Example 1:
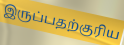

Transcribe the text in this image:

இருப்பதற்குரிய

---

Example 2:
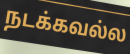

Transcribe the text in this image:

நடக்கவல்ல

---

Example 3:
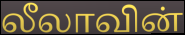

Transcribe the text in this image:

லீலாவின்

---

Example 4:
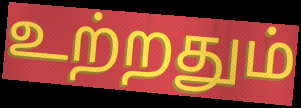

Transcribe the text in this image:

உற்றதும்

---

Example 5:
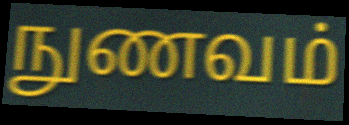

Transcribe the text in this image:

நுணவம்